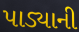
પાડ્યાની